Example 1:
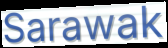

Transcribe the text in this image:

Sarawak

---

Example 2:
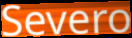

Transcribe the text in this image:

Severo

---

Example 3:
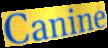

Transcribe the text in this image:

Canine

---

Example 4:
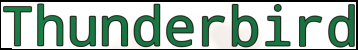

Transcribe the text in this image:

Thunderbird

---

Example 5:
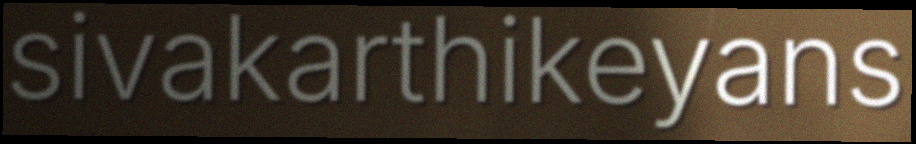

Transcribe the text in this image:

sivakarthikeyans